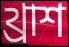
থ্রাশ